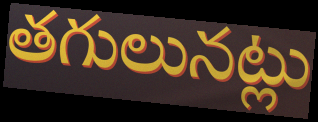
తగులునట్లు